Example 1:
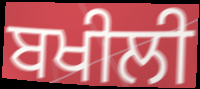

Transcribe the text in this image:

ਬਖੀਲੀ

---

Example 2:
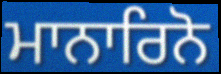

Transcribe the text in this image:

ਮਾਨਾਰਿਨੋ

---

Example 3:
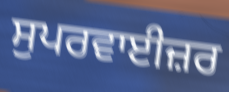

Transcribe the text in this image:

ਸੁਪਰਵਾਈਜ਼ਰ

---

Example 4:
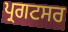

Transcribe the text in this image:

ਪ੍ਰਗਟਸਰ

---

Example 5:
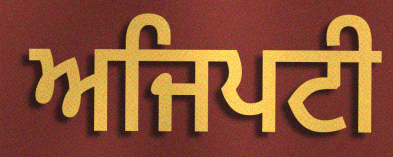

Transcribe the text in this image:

ਅਜਿਪਟੀ